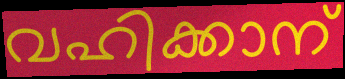
വഹിക്കാന്